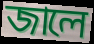
জালে